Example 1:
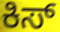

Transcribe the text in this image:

ಕಿಸ್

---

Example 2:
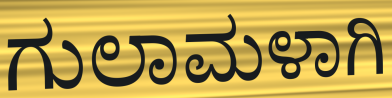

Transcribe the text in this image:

ಗುಲಾಮಳಾಗಿ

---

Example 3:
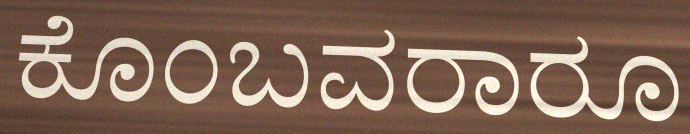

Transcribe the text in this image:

ಕೊಂಬವರಾರೂ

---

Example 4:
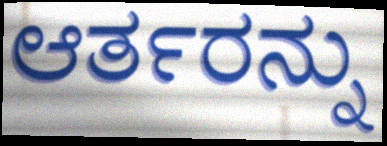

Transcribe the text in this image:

ಆರ್ತರನ್ನು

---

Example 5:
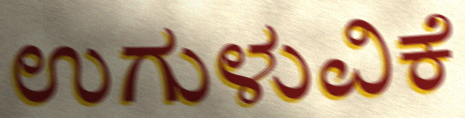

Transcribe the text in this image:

ಉಗುಳುವಿಕೆ